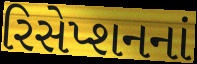
રિસેપ્શનનાં